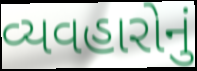
વ્યવહારોનું